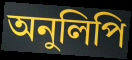
অনুলিপি